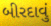
બીરદાવું